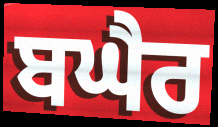
ਬਘੈਰ